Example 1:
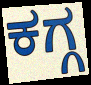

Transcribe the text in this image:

ಕಗ್ಗ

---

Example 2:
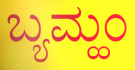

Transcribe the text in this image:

ಬ್ಯಮ್ಹಂ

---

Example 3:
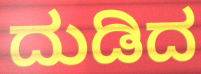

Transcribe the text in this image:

ದುಡಿದ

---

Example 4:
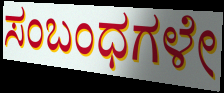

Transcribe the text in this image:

ಸಂಬಂಧಗಳೇ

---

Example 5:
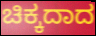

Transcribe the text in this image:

ಚಿಕ್ಕದಾದ